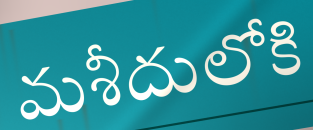
మశీదులోకి